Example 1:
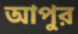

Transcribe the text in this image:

আপুর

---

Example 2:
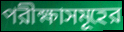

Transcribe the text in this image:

পরীক্ষাসমূহের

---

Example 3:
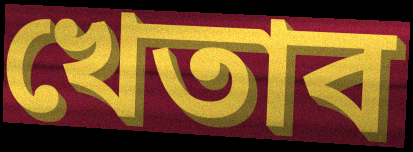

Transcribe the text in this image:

খেতাব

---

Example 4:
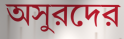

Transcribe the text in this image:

অসুরদের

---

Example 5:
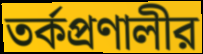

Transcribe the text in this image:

তর্কপ্রণালীর